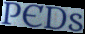
PEDs